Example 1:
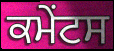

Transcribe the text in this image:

ਕਮੇੰਟਸ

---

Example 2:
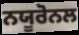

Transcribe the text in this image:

ਨਯੂਰੋਨਲ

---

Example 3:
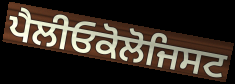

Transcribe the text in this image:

ਪੈਲੀਓਕੋਲੋਜਿਸਟ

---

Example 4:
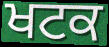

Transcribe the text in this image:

ਖਟਕ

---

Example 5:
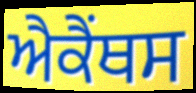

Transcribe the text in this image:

ਐਕੈਂਥਸ